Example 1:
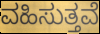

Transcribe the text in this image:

ವಹಿಸುತ್ತವೆ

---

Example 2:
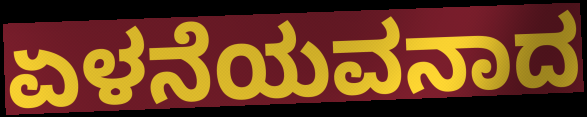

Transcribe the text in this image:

ಏಳನೆಯವನಾದ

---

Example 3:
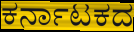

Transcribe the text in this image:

ಕರ್ನಾಟಕದ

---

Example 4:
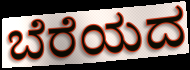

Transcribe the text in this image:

ಬೆರೆಯದ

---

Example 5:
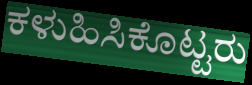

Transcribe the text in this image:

ಕಳುಹಿಸಿಕೊಟ್ಟರು